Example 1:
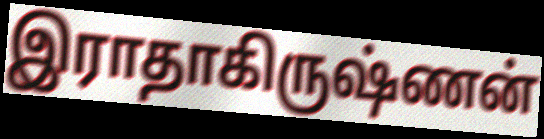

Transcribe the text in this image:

இராதாகிருஷ்ணன்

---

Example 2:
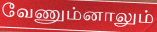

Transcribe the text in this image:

வேணும்னாலும்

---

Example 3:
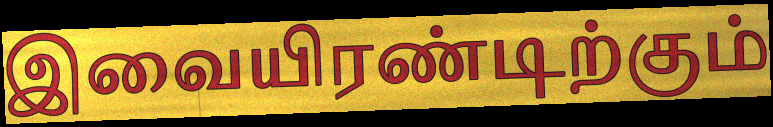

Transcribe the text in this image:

இவையிரண்டிற்கும்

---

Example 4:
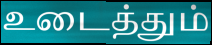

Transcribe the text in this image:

உடைத்தும்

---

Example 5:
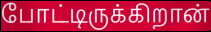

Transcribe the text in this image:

போட்டிருக்கிறான்